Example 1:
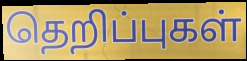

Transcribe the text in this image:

தெறிப்புகள்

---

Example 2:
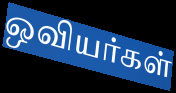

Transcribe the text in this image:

ஒவியர்கள்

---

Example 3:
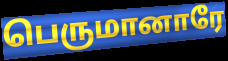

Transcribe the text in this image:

பெருமானாரே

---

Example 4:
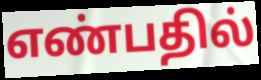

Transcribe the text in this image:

எண்பதில்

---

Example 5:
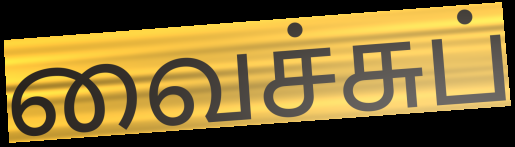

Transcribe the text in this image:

வைச்சுப்